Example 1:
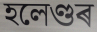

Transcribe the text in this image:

হলেণ্ডৰ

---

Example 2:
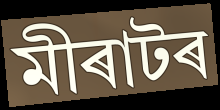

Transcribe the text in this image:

মীৰাটৰ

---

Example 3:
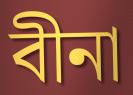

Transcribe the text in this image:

বীনা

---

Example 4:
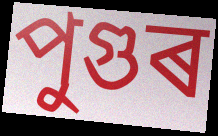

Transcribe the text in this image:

পুগুৰ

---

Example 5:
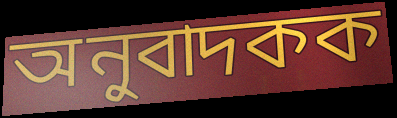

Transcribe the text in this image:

অনুবাদকক